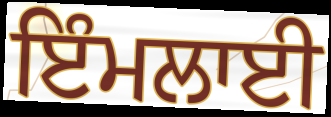
ਇੰਮਲਾਈ